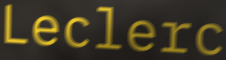
Leclerc